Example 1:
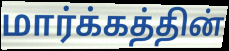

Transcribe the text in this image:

மார்க்கத்தின்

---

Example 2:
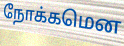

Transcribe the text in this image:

நோக்கமென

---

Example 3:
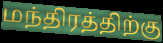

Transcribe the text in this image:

மந்திரத்திற்கு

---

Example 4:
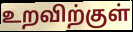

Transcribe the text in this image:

உறவிற்குள்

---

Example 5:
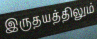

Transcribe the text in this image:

இருதயத்திலும்